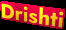
Drishti